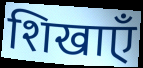
शिखाएँ